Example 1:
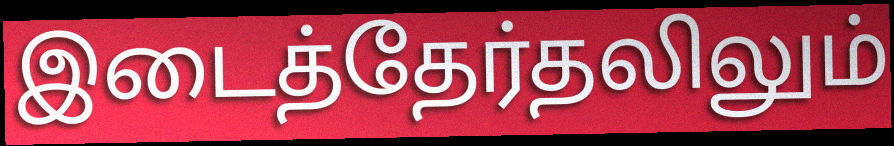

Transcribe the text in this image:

இடைத்தேர்தலிலும்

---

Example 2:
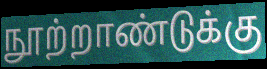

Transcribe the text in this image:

நூற்றாண்டுக்கு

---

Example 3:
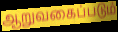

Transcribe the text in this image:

ஆறுவகைப்படும்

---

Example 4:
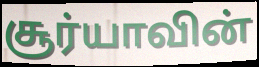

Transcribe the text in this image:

சூர்யாவின்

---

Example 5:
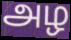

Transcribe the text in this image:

அழ